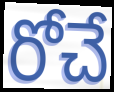
రోచే